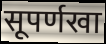
सूपर्णखा